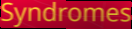
Syndromes